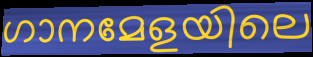
ഗാനമേളയിലെ